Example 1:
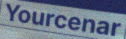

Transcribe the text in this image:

Yourcenar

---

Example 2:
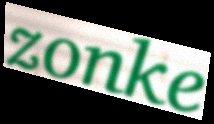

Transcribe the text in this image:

zonke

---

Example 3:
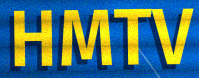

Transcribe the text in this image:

HMTV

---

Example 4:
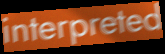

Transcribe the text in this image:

interpreted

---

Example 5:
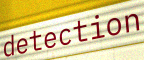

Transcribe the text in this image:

detection